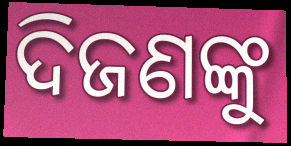
ଦିଜଣଙ୍କୁ